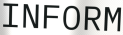
INFORM